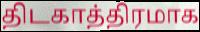
திடகாத்திரமாக